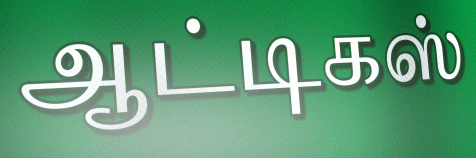
ஆட்டிகஸ்